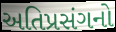
અતિપ્રસંગનો